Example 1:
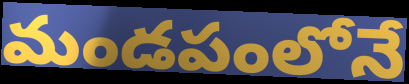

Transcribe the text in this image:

మండపంలోనే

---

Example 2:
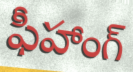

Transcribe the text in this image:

ఫీహాంగ్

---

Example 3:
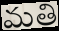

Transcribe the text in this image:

మతి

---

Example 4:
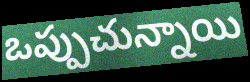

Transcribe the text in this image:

ఒప్పుచున్నాయి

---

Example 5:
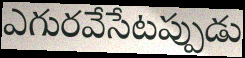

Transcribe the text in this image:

ఎగురవేసేటప్పుడు